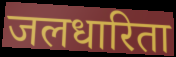
जलधारिता